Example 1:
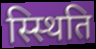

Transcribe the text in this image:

स्स्थिति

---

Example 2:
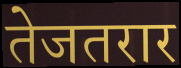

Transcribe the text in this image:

तेजतरार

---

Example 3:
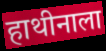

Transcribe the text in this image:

हाथीनाला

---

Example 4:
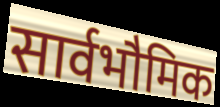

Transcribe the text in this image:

सार्वभौमिक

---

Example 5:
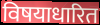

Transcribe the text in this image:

विषयाधारित